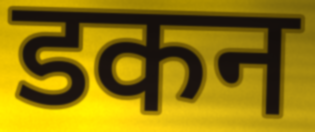
डकन